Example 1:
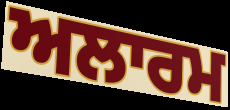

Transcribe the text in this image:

ਅਲਾਰਮ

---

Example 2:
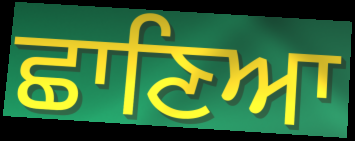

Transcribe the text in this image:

ਛਾਣਿਆ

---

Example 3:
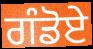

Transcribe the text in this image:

ਗੰਡੋਏ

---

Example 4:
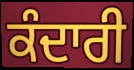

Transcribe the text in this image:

ਕੰਦਾਰੀ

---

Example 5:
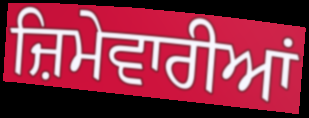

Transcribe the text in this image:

ਜ਼ਿਮੇਵਾਰੀਆਂ